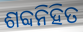
ଶବ୍ଦନିହିତ